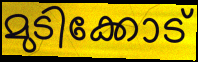
മുടിക്കോട്